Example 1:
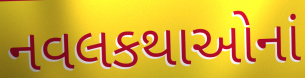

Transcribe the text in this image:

નવલકથાઓનાં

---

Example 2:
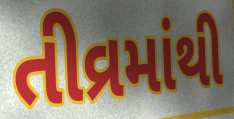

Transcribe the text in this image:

તીવ્રમાંથી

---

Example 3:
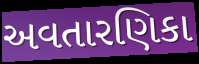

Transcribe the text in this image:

અવતારણિકા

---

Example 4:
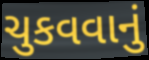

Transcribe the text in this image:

ચુકવવાનું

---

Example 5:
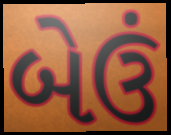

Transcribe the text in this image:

બેઉં